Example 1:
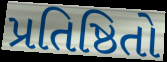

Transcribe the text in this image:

પ્રતિષ્ઠિતો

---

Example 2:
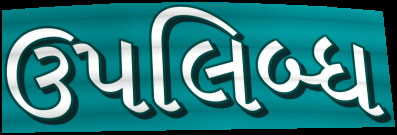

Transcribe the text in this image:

ઉપલિબ્ધ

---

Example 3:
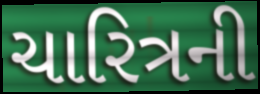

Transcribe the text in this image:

ચારિત્રની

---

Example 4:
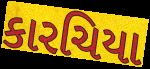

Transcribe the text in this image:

કારચિયા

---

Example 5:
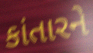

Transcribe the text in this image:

કાંતારને